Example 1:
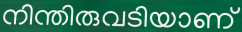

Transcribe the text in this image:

നിന്തിരുവടിയാണ്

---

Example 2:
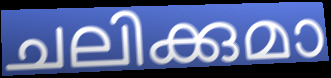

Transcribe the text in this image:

ചലിക്കുമാ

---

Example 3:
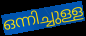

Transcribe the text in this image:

ഒന്നിച്ചുള്ള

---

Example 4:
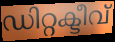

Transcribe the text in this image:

ഡിറ്റക്ടീവ്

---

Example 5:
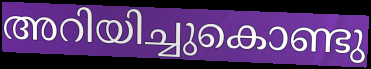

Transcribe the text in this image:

അറിയിച്ചുകൊണ്ടു